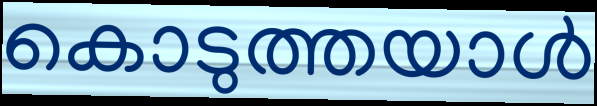
കൊടുത്തയാൾ